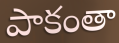
పాకంతా